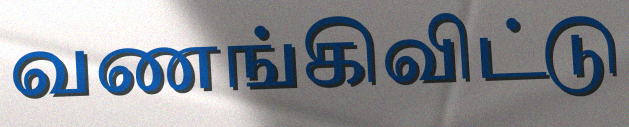
வணங்கிவிட்டு